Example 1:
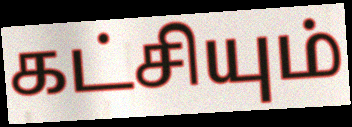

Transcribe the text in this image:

கட்சியும்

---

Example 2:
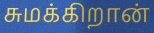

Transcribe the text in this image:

சுமக்கிறான்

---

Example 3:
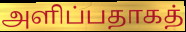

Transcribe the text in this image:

அளிப்பதாகத்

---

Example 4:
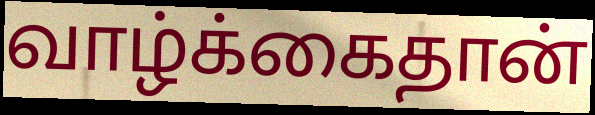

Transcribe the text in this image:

வாழ்க்கைதான்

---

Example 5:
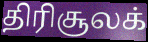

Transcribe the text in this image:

திரிசூலக்